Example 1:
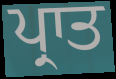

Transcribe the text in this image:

ਪ੍ਰਾਤ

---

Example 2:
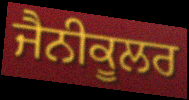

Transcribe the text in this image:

ਜੈਨੀਕੂਲਰ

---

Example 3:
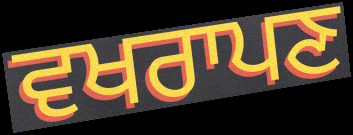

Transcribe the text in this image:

ਵਖਰਾਪਣ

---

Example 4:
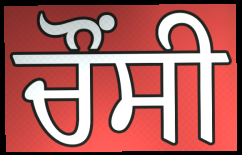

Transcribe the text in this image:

ਚੌਂਸੀ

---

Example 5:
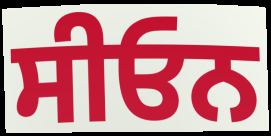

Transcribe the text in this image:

ਸੀਓਨ